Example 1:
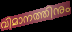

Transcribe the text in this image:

വിമാനത്തിനും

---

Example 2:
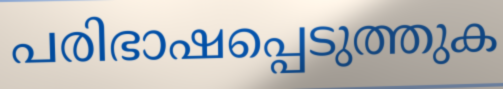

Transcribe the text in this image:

പരിഭാഷപ്പെടുത്തുക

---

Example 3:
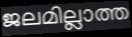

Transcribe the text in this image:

ജലമില്ലാത്ത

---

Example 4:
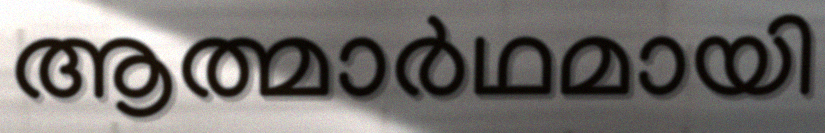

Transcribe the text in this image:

ആത്മാർഥമായി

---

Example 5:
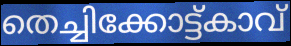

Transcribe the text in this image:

തെച്ചിക്കോട്ട്കാവ്